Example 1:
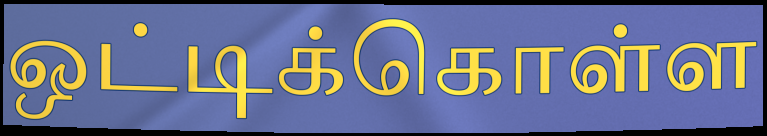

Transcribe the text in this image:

ஒட்டிக்கொள்ள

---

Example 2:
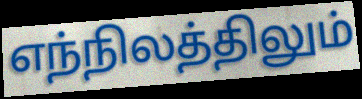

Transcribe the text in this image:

எந்நிலத்திலும்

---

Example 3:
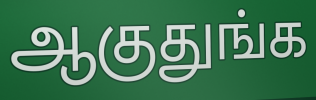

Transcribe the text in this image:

ஆகுதுங்க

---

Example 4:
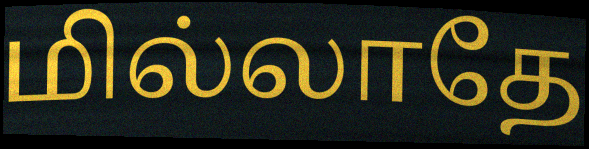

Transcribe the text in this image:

மில்லாதே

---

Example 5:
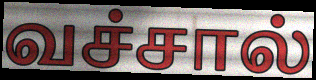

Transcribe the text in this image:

வச்சால்